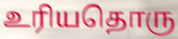
உரியதொரு